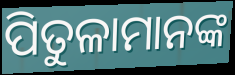
ପିତୁଳାମାନଙ୍କ